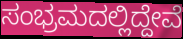
ಸಂಭ್ರಮದಲ್ಲಿದ್ದೇವೆ